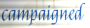
campaigned